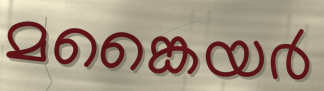
മങ്കൈയർ